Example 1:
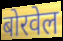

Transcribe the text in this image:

बोरवेल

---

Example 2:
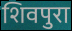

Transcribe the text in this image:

शिवपुरा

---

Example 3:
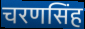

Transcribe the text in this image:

चरणसिंह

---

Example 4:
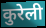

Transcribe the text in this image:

कुरेली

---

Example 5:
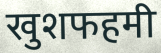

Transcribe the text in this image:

खुशफहमी